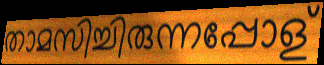
താമസിച്ചിരുന്നപ്പോള്